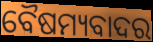
ବୈଷମ୍ୟବାଦର